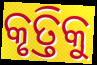
କୃତ୍ତିକୁ